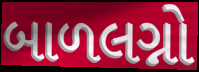
બાળલગ્નો